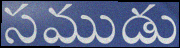
సముడు